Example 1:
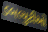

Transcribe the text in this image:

ડબલ્યુટીઓ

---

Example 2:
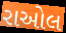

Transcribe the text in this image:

રાઓલ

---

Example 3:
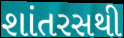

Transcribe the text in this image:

શાંતરસથી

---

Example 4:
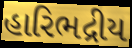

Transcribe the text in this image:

હારિભદ્રીય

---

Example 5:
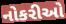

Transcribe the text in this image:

નોકરીઓ